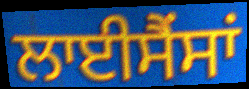
ਲਾਈਸੈਂਸਾਂ